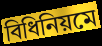
বিধিনিয়মে